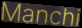
Manchi